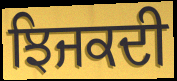
ਝਿਜਕਦੀ